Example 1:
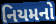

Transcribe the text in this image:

નિયમનો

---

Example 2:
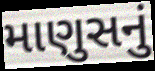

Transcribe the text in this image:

માણુસનું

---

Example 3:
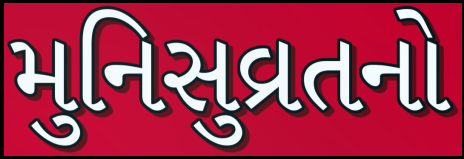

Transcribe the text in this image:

મુનિસુવ્રતનો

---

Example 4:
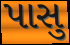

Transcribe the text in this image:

પાસુ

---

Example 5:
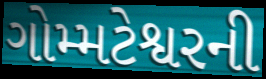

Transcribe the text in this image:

ગોમ્મટેશ્વરની